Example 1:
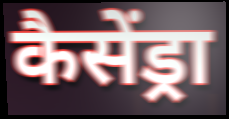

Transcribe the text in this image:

कैसेंड्रा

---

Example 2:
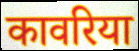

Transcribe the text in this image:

कावरिया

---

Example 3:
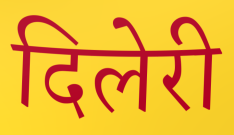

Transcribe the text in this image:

दिलेरी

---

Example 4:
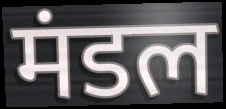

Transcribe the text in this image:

मंडल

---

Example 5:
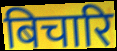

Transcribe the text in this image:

बिचारि